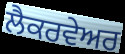
ਲੈਕਰਵੇਅਰ